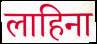
लाहिना